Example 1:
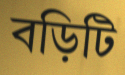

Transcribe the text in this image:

বড়িটি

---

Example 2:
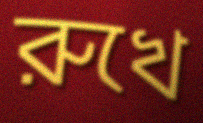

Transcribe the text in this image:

রুখে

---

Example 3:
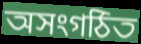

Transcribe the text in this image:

অসংগঠিত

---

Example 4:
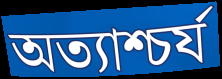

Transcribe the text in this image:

অত্যাশ্চর্য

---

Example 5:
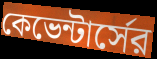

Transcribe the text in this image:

কেভেন্টার্সের